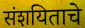
संशयिताचे